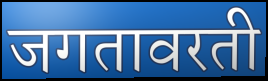
जगतावरती